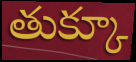
తుక్కూ